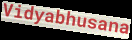
Vidyabhusana